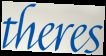
theres